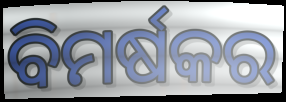
ବିମର୍ଷକର